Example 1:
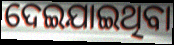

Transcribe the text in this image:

ଦେଇଯାଇଥିବା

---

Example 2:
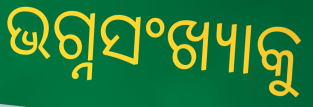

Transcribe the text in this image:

ଭଗ୍ନସଂଖ୍ୟାକୁ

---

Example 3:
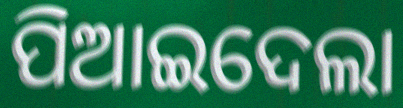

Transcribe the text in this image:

ପିଆଇଦେଲା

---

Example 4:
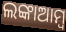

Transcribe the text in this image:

ଲଙ୍କାଆମ୍ବ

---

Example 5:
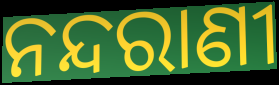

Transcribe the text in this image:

ନନ୍ଦରାଣୀ